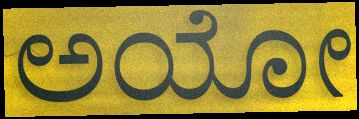
ಅಯೋ